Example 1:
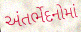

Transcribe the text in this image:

અંતર્ભેદનોમાં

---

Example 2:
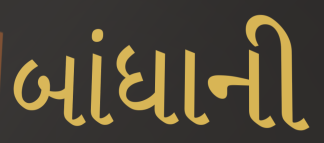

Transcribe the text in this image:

બાંધાની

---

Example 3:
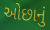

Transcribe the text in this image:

ઓછાનું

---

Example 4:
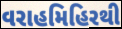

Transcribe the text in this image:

વરાહમિહિરથી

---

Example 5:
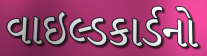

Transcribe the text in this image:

વાઇલ્ડકાર્ડનો